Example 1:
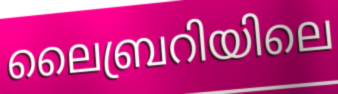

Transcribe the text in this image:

ലൈബ്രറിയിലെ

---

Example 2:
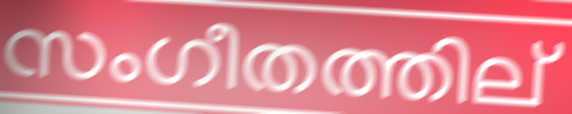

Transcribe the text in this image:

സംഗീതത്തില്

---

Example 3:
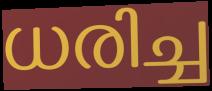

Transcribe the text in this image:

ധരിച്ച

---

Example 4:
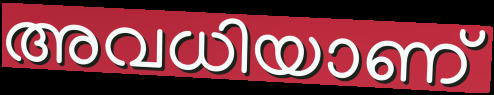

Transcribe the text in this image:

അവധിയാണ്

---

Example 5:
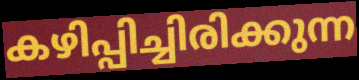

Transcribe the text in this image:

കഴിപ്പിച്ചിരിക്കുന്ന